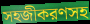
সহজীকরণসহ